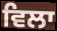
ਵਿਲਾ